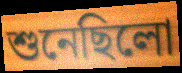
শুনেছিলো